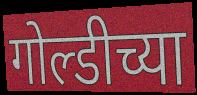
गोल्डीच्या